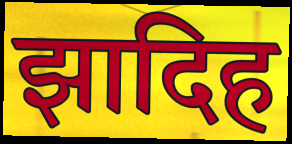
झादिह